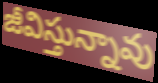
జీవిస్తున్నావు